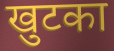
खुटका